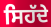
ਸਿਹੱਦੇ